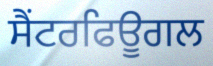
ਸੈਂਟਰਫਿਊਗਲ